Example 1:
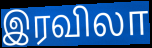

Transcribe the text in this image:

இரவிலா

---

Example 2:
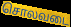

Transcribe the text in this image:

சொலவடை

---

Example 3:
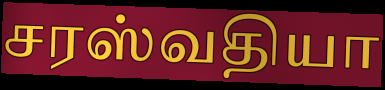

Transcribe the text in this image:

சரஸ்வதியா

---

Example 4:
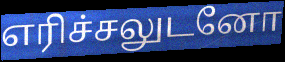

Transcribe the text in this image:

எரிச்சலுடனோ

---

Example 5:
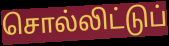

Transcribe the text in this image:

சொல்லிட்டுப்